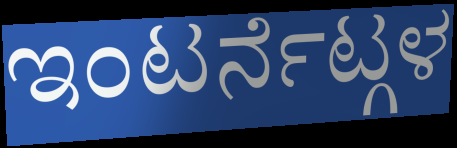
ಇಂಟರ್ನೆಟ್ಗಳ